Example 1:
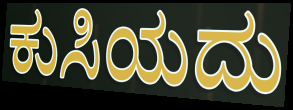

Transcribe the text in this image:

ಕುಸಿಯದು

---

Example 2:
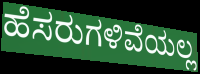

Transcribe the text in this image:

ಹೆಸರುಗಳಿವೆಯಲ್ಲ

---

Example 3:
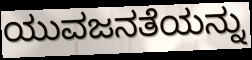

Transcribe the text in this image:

ಯುವಜನತೆಯನ್ನು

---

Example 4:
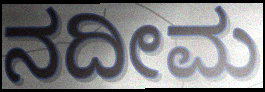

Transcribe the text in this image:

ನದೀಮ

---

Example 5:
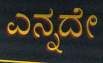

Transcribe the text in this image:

ಎನ್ನದೇ